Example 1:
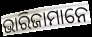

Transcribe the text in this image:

ଭାରିଜାମାନେ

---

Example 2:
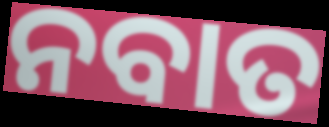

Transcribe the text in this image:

ନବାତ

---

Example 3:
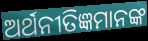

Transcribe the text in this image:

ଅର୍ଥନୀତିଜ୍ଞମାନଙ୍କ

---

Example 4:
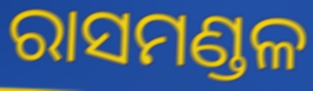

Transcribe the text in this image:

ରାସମଣ୍ଡଳ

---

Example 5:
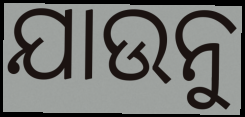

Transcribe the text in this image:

ଯାଉନୁ